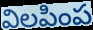
విలపింప